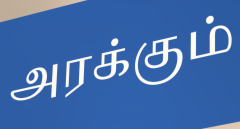
அரக்கும்